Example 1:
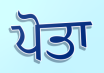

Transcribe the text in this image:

ਪੋਤਾ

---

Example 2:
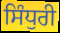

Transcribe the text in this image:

ਸਿੰਧੁਰੀ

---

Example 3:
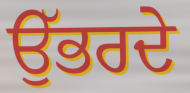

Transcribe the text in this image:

ਉੱਭਰਦੇ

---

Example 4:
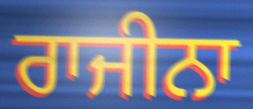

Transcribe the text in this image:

ਰਾਜੀਨਾ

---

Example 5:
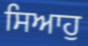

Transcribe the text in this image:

ਸਿਆਹੁ